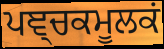
ਪਞ੍ਚਕਮੂਲਕਂ